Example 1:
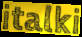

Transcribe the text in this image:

italki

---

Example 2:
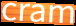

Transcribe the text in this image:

cram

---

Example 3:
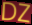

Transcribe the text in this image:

DZ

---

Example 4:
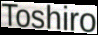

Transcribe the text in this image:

Toshiro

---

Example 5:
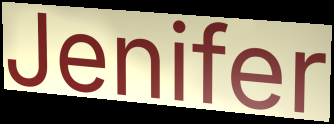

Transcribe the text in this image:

Jenifer